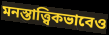
মনস্তাত্ত্বিকভাবেও